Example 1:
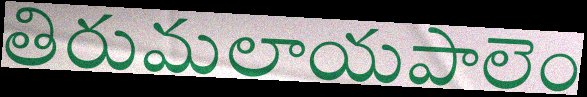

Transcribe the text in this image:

తిరుమలాయపాలెం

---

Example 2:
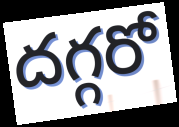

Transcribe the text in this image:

దగ్గరో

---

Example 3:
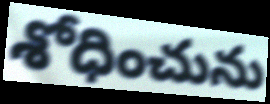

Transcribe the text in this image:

శోధించును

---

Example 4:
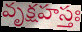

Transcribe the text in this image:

వృక్షహస్తః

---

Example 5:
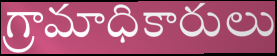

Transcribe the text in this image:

గ్రామాధికారులు